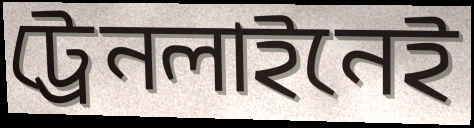
ট্রেনলাইনেই